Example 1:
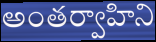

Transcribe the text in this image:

అంతర్వాహిని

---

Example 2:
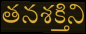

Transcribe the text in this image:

తనశక్తిని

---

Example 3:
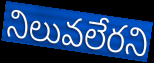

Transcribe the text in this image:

నిలువలేరని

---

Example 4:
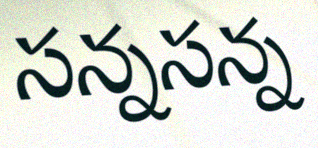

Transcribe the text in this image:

సన్నసన్న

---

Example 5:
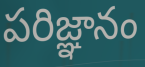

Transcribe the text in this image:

పరిజ్ఞానం